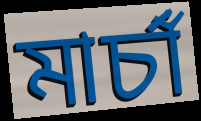
মার্চাঁ